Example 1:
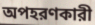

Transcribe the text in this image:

অপহরণকারী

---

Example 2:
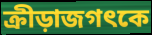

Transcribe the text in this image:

ক্রীড়াজগৎকে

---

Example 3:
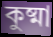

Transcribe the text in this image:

কুষ্মা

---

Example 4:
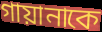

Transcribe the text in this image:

গায়ানাকে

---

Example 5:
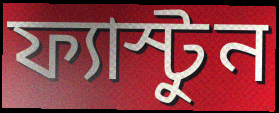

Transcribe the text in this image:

ফ্যাস্টুন